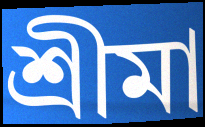
শ্রীমা